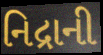
નિદ્રાની